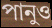
পানুও